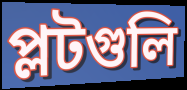
প্লটগুলি